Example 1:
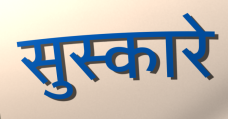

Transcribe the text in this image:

सुस्कारे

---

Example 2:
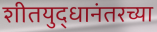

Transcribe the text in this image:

शीतयुद्धानंतरच्या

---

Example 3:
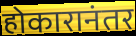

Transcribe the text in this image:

होकारानंतर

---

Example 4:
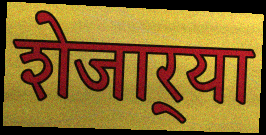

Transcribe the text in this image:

शेजार्या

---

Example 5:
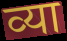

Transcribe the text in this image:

व्‍या